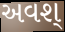
અવશ્